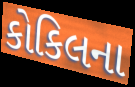
કોકિલના